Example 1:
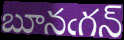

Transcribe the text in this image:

బూనఁగన్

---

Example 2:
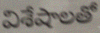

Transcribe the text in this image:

విశేషాలతో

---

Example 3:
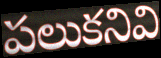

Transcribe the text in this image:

పలుకనివి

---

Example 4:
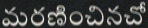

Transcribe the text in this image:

మరణించినచో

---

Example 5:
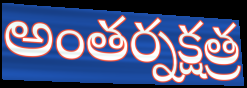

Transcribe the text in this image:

అంతర్నక్షత్ర